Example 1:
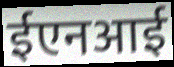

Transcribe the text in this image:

ईएनआई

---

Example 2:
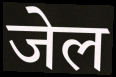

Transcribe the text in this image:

जेल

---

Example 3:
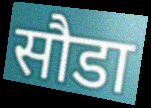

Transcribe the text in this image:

सौडा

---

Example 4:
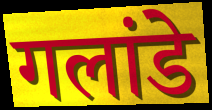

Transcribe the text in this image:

गलांडे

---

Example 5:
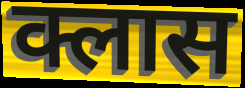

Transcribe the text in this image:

क्लास